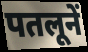
पतलूनें